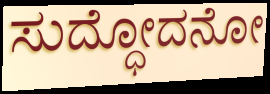
ಸುದ್ಧೋದನೋ